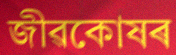
জীৱকোষৰ